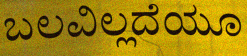
ಬಲವಿಲ್ಲದೆಯೂ